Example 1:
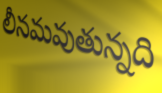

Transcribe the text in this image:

లీనమవుతున్నది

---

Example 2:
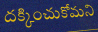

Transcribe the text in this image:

దక్కించుకోమని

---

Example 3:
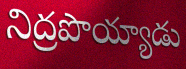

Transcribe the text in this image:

నిద్రపొయ్యాడు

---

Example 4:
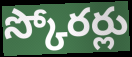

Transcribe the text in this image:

స్కోరర్లు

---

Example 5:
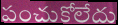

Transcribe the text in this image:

పంచుకోలేదు